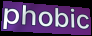
phobic